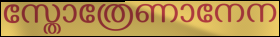
സ്തോത്രേണാനേന